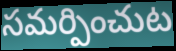
సమర్పించుట